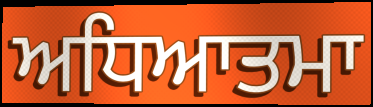
ਅਧਿਆਤਮਾ